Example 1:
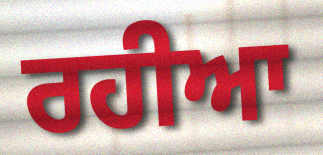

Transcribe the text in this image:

ਰਹੀਆ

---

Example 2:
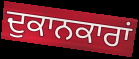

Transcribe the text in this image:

ਦੁਕਾਨਕਾਰਾਂ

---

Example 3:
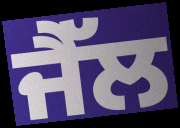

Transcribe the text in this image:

ਜੈੱਲ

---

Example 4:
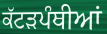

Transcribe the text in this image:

ਕੱਟੜਪੰਥੀਆਂ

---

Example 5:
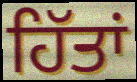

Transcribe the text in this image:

ਹਿੱਤਾਂ